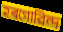
হৰগোৱিন্দ